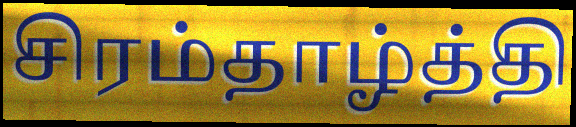
சிரம்தாழ்த்தி